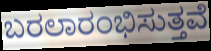
ಬರಲಾರಂಭಿಸುತ್ತವೆ